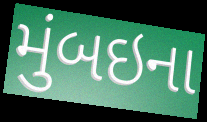
મુંબઇના